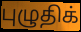
புழுதிக்